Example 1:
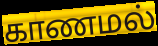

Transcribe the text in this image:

காணமல்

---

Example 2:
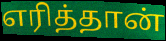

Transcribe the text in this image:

எரித்தான்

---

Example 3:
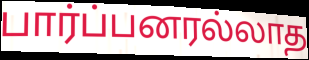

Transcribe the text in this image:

பார்ப்பனரல்லாத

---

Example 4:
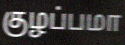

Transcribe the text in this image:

குழப்பமா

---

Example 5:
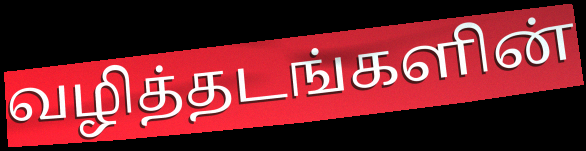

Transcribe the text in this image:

வழித்தடங்களின்